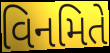
વિનમિતે